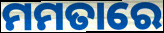
ମମତାରେ